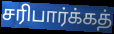
சரிபார்க்கத்